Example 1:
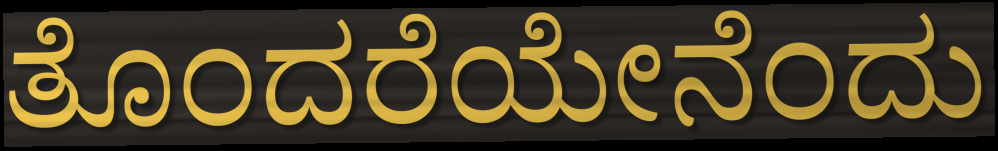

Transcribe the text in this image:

ತೊಂದರೆಯೇನೆಂದು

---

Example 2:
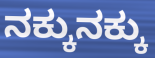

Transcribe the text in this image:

ನಕ್ಕುನಕ್ಕು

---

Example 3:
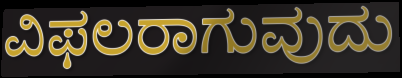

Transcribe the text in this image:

ವಿಫಲರಾಗುವುದು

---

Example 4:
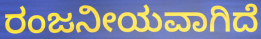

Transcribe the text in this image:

ರಂಜನೀಯವಾಗಿದೆ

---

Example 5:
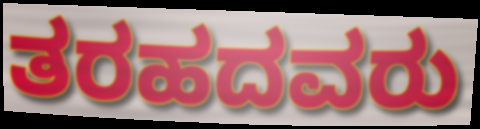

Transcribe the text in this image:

ತರಹದವರು